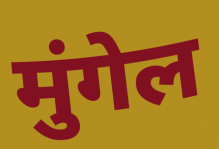
मुंगेल